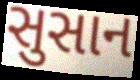
સુસાન